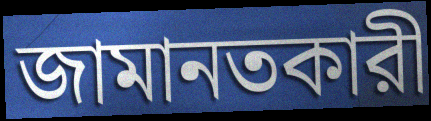
জামানতকারী